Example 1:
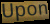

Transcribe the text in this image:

Upon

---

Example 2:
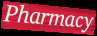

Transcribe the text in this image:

Pharmacy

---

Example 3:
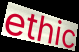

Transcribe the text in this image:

ethic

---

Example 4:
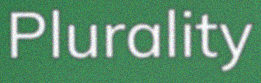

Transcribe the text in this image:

Plurality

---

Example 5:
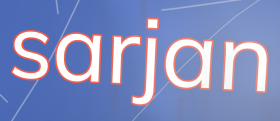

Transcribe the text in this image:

sarjan